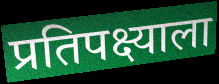
प्रतिपक्ष्याला